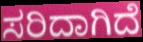
ಸರಿದಾಗಿದೆ